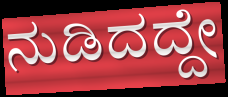
ನುಡಿದದ್ದೇ